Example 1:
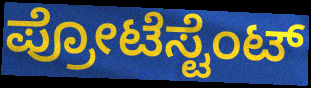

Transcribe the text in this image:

ಪ್ರೋಟೆಸ್ಟೆಂಟ್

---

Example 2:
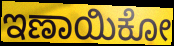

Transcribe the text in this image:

ಇಣಾಯಿಕೋ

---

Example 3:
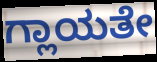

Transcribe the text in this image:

ಗ್ಲಾಯತೇ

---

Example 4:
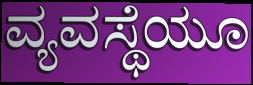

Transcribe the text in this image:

ವ್ಯವಸ್ಥೆಯೂ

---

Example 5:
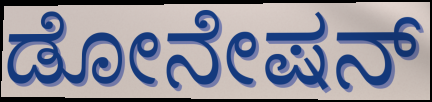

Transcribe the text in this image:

ಡೋನೇಷನ್